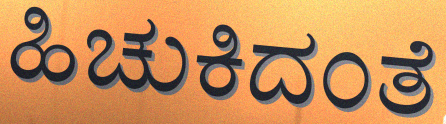
ಹಿಚುಕಿದಂತೆ